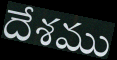
దేశము